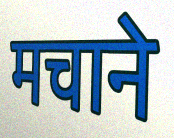
मचाने